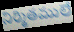
నిర్మితములే